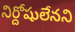
నిర్దోషులేనని